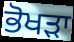
ਭੋਖੜਾ